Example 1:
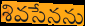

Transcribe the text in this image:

శివసేనను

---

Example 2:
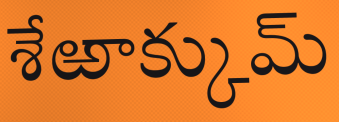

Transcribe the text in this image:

శేఱాక్కుమ్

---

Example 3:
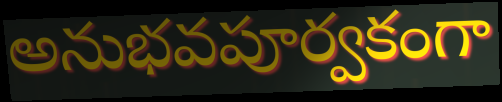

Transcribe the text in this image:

అనుభవపూర్వకంగా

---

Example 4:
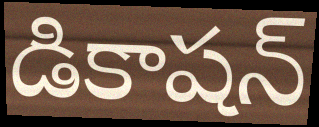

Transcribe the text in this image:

డికాషన్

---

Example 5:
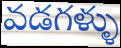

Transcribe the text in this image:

వడగళ్ళు